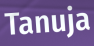
Tanuja